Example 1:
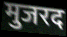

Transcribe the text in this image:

मुजरद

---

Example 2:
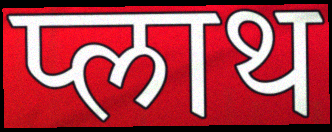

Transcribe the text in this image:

प्लाथ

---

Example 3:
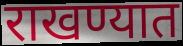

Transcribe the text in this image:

राखण्यात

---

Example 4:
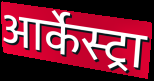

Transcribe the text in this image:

आर्केस्ट्रा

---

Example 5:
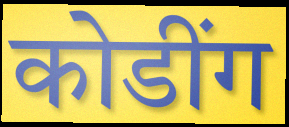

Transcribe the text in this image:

कोडींग